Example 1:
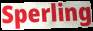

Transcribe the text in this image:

Sperling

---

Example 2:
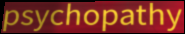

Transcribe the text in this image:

psychopathy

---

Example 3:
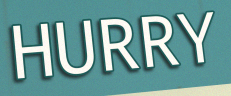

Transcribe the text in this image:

HURRY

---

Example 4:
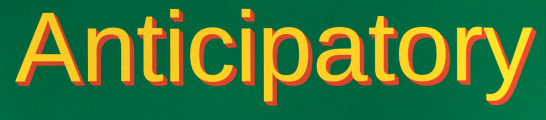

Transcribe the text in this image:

Anticipatory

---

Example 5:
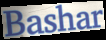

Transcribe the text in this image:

Bashar